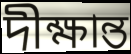
দীক্ষান্ত